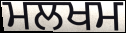
ਮਲਖਮ